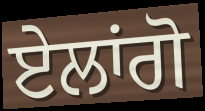
ਏਲਾਂਗੋ